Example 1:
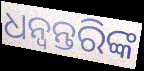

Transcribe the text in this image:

ଧନ୍ୱନ୍ତରିଙ୍କ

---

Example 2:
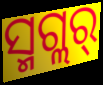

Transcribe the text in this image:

ସ୍ମଗ୍ଲର୍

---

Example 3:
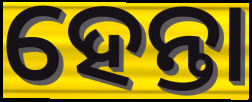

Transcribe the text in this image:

ହେନ୍ତା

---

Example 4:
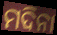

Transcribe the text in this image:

ମଦିନା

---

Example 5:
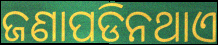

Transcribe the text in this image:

ଜଣାପଡିନଥାଏ